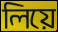
লিয়ে